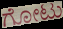
ಗೋಟು